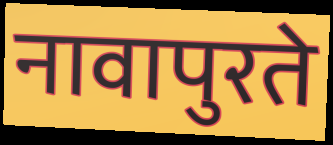
नावापुरते